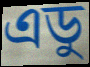
এডু